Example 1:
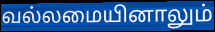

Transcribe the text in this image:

வல்லமையினாலும்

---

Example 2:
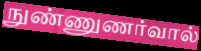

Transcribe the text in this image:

நுண்ணுணர்வால்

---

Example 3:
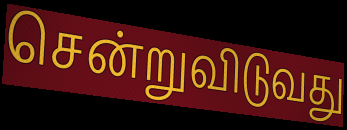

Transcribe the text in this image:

சென்றுவிடுவது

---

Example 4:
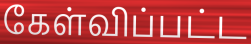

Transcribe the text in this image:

கேள்விப்பட்ட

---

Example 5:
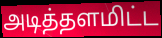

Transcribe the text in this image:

அடித்தளமிட்ட